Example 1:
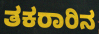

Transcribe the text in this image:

ತಕರಾರಿನ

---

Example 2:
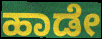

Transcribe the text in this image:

ಹಾಡೇ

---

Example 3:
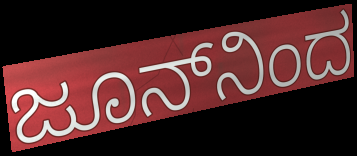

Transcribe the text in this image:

ಜೂನ್‌ನಿಂದ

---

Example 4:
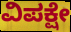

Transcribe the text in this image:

ವಿಪಕ್ಷೇ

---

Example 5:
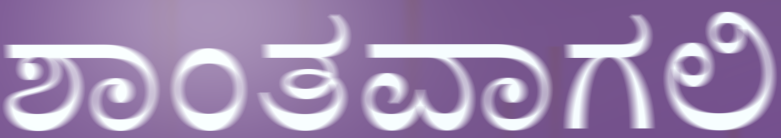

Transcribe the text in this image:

ಶಾಂತವಾಗಲಿ